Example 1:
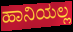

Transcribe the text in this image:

ಹಾನಿಯಲ್ಲ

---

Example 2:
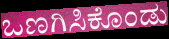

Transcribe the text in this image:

ಒಣಗಿಸಿಕೊಂಡು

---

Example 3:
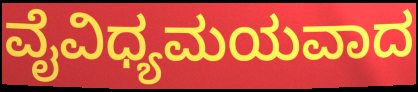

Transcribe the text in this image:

ವೈವಿಧ್ಯಮಯವಾದ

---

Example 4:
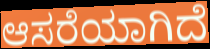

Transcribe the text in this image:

ಆಸರೆಯಾಗಿದೆ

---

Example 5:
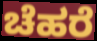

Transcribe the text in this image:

ಚೆಹರೆ